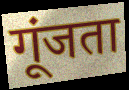
गूंजता